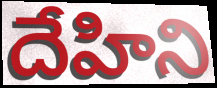
దేహిని